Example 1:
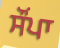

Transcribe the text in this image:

ਸੌਂਪਾ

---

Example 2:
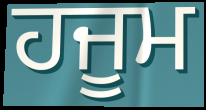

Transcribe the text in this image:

ਹਜੂਮ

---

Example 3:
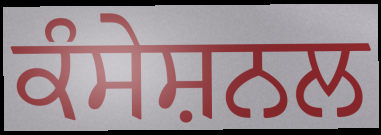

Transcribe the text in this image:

ਕੰਸੇਸ਼ਨਲ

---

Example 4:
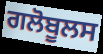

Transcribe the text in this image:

ਗਲੋਬੂਲਸ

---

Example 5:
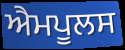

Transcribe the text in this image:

ਐਮਪੂਲਸ